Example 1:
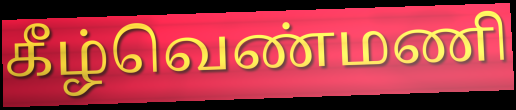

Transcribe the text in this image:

கீழ்வெண்மணி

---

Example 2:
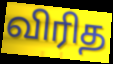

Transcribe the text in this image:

விரித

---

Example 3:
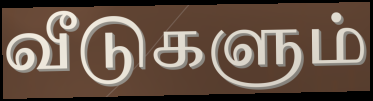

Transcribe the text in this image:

வீடுகளும்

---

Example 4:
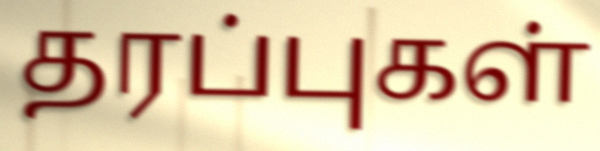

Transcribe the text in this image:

தரப்புகள்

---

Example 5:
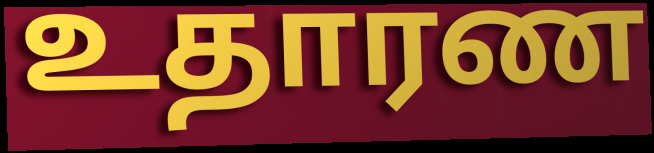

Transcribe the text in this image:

உதாரண